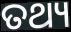
ତଥ୍ୟ